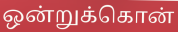
ஒன்றுக்கொன்